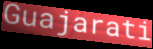
Guajarati